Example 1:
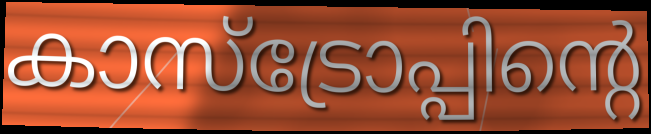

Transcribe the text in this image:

കാസ്ട്രോപ്പിന്റെ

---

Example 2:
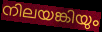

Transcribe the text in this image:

നിലയങ്കിയും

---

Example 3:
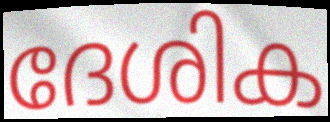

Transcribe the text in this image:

ദേശിക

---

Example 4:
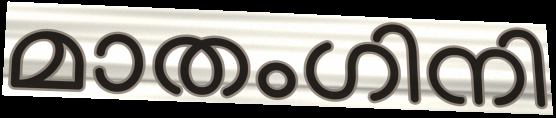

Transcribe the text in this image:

മാതംഗിനി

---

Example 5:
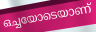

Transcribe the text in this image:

ഒച്ചയോടെയാണ്